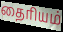
தைரியம்